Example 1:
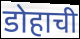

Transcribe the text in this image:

डोहाची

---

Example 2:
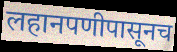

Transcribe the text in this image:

लहानपणीपासूनच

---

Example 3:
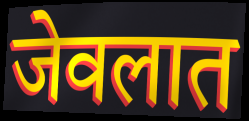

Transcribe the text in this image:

जेवलात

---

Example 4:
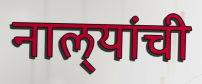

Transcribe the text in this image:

नाल्यांची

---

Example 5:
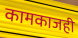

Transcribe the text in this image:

कामकाजही